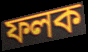
ফলক